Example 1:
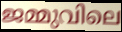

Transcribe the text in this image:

ജമ്മുവിലെ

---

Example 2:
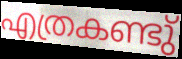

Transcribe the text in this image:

എത്രകണ്ടു്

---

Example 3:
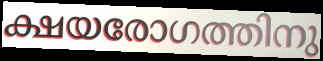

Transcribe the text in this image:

ക്ഷയരോഗത്തിനു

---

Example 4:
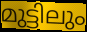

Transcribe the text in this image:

മുട്ടിലും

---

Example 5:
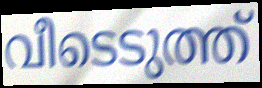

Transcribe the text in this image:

വീടെടുത്ത്